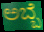
ಅಬ್ಬೆ